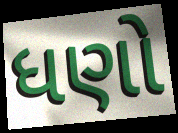
ધણો